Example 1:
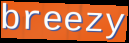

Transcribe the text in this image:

breezy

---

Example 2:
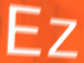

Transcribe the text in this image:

Ez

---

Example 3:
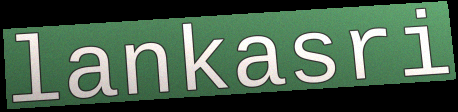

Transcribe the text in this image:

lankasri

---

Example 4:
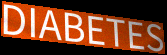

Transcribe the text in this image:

DIABETES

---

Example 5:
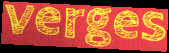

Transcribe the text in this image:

verges